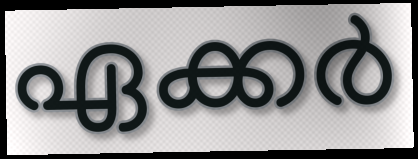
ഏക്കർ